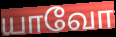
யாவோ